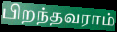
பிறந்தவராம்